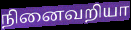
நினைவறியா